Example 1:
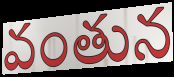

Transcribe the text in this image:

వంతున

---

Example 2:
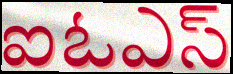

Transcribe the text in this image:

ఐఓఎస్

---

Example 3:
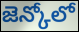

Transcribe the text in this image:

జెన్కోలో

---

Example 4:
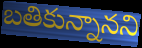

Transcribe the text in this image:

బతికున్నానని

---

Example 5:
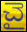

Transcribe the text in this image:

చై